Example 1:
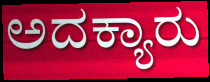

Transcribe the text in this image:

ಅದಕ್ಯಾರು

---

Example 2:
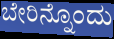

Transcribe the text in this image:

ಬೇರಿನ್ನೊಂದು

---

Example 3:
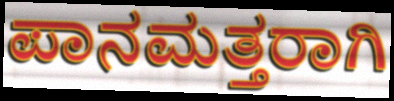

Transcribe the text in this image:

ಪಾನಮತ್ತರಾಗಿ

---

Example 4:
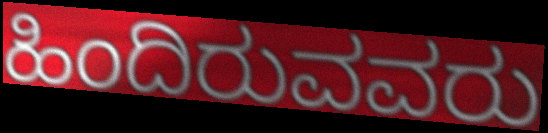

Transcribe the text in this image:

ಹಿಂದಿರುವವರು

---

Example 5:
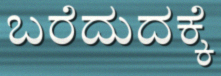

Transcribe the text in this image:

ಬರೆದುದಕ್ಕೆ